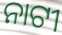
ନାଟୀ